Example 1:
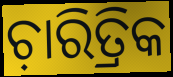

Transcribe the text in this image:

ଚ଼ାରିତ୍ରିକ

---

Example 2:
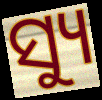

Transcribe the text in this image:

ସ୍ୟୁ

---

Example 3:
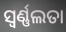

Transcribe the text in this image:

ସ୍ଵର୍ଣ୍ଣଲତା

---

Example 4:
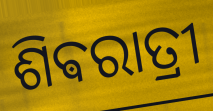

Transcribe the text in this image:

ଶିଵରାତ୍ରୀ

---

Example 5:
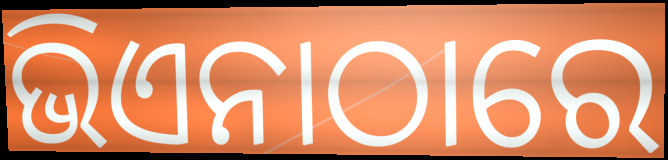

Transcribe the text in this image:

ଭିଏନାଠାରେ